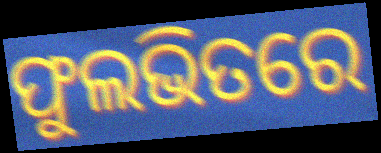
ଫୁଲଭିତରେ